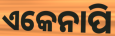
ଏକେନାପି